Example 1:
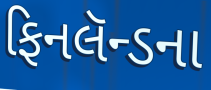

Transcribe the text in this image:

ફિનલૅન્ડના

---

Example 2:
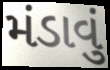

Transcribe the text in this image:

મંડાવું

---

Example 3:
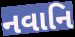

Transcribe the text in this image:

નવાનિ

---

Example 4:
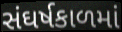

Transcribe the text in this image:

સંઘર્ષકાળમાં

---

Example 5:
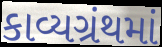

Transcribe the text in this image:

કાવ્યગ્રંથમાં